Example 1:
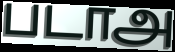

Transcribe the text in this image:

படாஅ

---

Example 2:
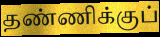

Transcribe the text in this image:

தண்ணிக்குப்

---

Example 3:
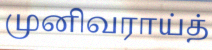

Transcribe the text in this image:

முனிவராய்த்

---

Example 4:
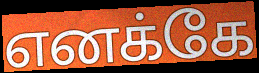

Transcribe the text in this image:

எனக்கே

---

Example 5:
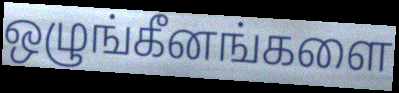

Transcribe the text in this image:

ஒழுங்கீனங்களை